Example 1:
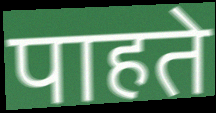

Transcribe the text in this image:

पाहते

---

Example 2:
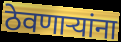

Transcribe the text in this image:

ठेवणार्‍यांना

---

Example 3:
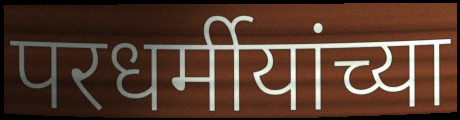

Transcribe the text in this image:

परधर्मीयांच्या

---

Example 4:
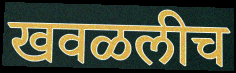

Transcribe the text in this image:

खवळलीच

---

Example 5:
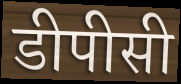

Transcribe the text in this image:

डीपीसी